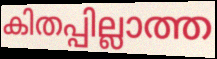
കിതപ്പില്ലാത്ത